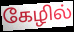
கேழில்